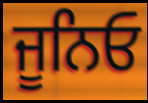
ਜੂਨਿਓ